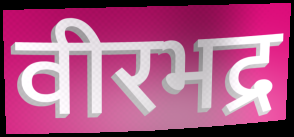
वीरभद्र